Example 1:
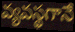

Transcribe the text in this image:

వ్యవస్థగానే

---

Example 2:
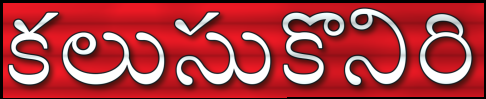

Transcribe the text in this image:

కలుసుకొనిరి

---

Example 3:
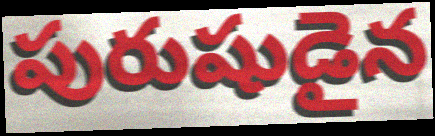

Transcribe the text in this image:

పురుషుడైన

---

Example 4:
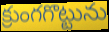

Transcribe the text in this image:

క్రుంగగొట్టును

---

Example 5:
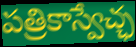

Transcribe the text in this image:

పత్రికాస్వేచ్ఛ